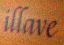
illave